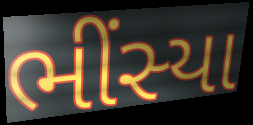
ભીંસ્યા